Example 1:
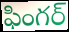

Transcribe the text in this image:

ఫింగర్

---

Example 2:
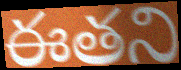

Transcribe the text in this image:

ఈతని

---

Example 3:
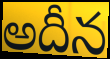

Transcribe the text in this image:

అదీన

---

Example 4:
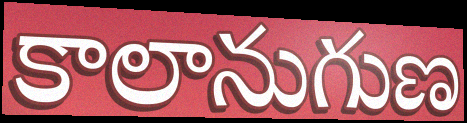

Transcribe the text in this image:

కాలానుగుణ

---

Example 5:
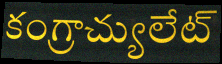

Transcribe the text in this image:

కంగ్రాచ్యులేట్